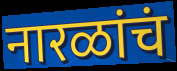
नारळांचं